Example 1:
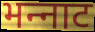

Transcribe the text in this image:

भन्नाट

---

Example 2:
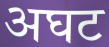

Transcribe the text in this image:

अघट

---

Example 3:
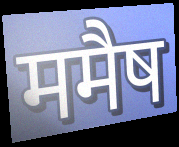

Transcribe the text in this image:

ममैष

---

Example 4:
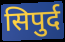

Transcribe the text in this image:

सिपुर्द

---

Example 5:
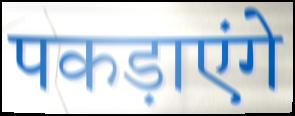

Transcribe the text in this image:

पकड़ाएंगे